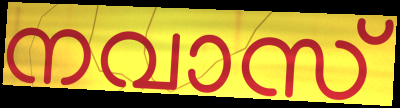
നവാസ്